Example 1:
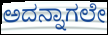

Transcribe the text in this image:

ಅದನ್ನಾಗಲೇ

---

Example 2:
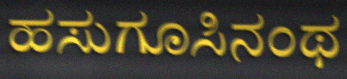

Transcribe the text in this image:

ಹಸುಗೂಸಿನಂಥ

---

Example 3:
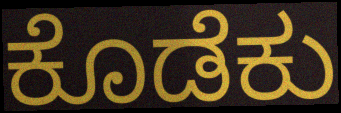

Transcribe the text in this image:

ಕೊಡೆಕು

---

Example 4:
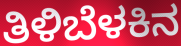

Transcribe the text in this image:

ತಿಳಿಬೆಳಕಿನ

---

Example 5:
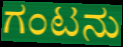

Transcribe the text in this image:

ಗಂಟನು